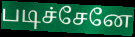
படிச்சேனே